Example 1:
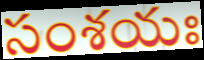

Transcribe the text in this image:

సంశయః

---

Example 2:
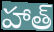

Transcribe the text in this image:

హాత్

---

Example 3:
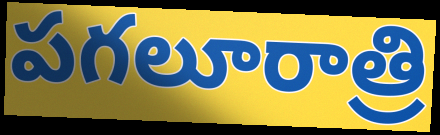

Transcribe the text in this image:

పగలూరాత్రి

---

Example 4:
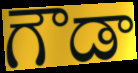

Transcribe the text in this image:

గౌడా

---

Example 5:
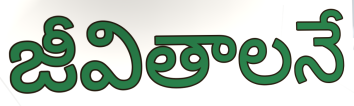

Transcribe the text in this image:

జీవితాలనే